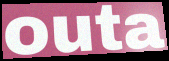
outa